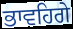
ਭਾਵਹਿਗੇ